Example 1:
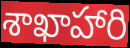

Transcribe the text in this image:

శాఖాహారి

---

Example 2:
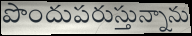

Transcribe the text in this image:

పొందుపరుస్తున్నాను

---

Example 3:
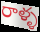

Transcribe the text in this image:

రాళ్ళ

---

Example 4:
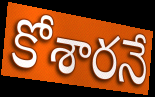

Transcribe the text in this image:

కోశారనే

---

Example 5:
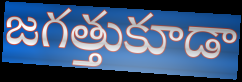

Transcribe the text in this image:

జగత్తుకూడా